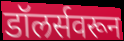
डॉलर्सवरून